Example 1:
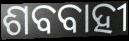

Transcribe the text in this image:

ଶବବାହୀ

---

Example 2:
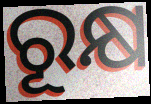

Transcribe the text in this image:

ରୂକ୍ଷ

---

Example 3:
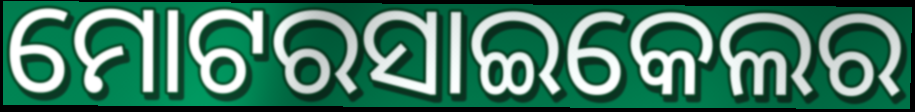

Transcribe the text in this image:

ମୋଟରସାଇକେଲର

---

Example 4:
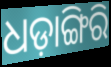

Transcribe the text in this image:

ଧଡ଼ାଙ୍ଗିରି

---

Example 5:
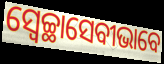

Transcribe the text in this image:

ସ୍ୱେଚ୍ଛାସେବୀଭାବେ